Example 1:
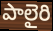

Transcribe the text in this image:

పాలైరి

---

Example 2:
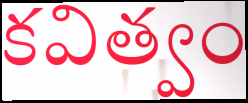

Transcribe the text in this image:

కవిత్వం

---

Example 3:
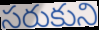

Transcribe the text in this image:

సరుకుని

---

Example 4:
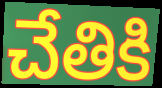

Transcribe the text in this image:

చేతికి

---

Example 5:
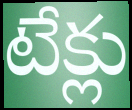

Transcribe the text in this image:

టేక్లు